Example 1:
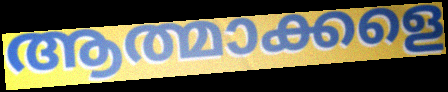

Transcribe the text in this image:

ആത്മാക്കളെ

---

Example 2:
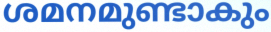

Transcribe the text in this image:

ശമനമുണ്ടാകും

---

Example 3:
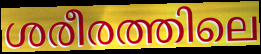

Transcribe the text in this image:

ശരീരത്തിലെ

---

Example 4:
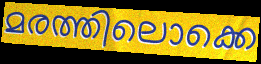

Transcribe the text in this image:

മരത്തിലൊക്കെ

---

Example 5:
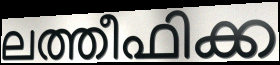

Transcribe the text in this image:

ലത്തീഫിക്ക